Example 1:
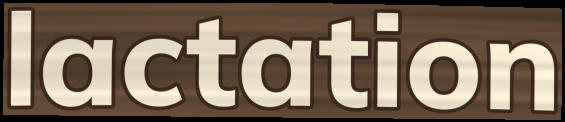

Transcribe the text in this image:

lactation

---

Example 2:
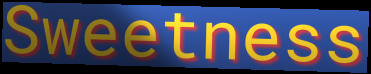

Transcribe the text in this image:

Sweetness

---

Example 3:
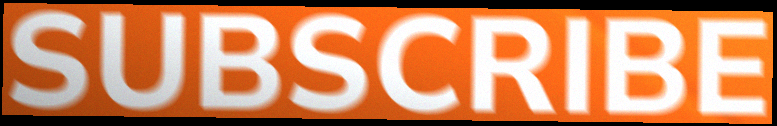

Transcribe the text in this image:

SUBSCRIBE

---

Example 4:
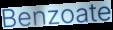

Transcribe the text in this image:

Benzoate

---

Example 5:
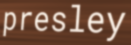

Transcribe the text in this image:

presley